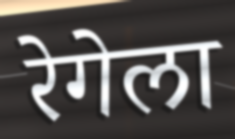
रेगेला